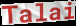
Talai